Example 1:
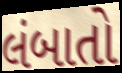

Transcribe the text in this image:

લંબાતો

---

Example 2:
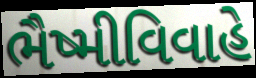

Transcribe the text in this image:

ભૈષ્મીવિવાહે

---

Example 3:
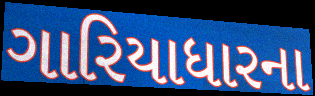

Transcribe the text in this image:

ગારિયાધારના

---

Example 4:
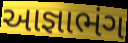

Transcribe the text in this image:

આજ્ઞાભંગ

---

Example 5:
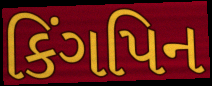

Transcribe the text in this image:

કિંગપિન